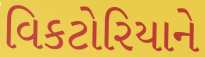
વિકટોરિયાને